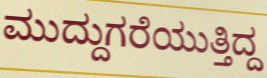
ಮುದ್ದುಗರೆಯುತ್ತಿದ್ದ